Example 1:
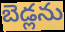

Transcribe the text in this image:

బెడ్లను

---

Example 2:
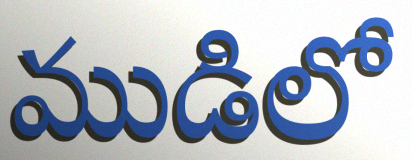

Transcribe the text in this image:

ముడిలో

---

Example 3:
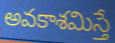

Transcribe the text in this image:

అవకాశమిస్తే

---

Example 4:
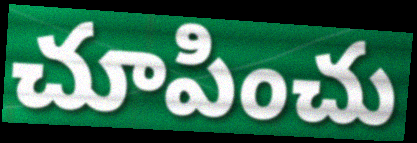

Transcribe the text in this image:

చూపించు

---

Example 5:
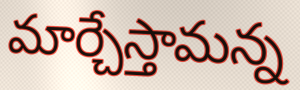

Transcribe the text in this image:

మార్చేస్తామన్న